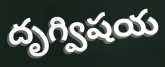
దృగ్విషయ